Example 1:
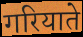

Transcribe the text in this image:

गरियाते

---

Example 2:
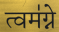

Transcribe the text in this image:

त्वम॑ग्ने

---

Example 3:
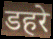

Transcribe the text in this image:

डहरे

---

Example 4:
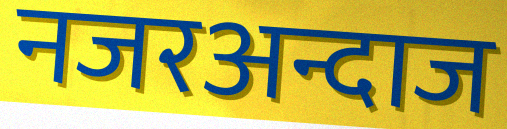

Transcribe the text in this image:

नजरअन्दाज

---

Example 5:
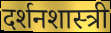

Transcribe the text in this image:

दर्शनशास्त्री